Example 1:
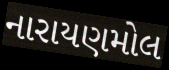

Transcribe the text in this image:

નારાયણમોલ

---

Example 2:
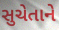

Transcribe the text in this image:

સુચેતાને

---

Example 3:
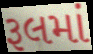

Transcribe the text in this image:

રૂલમાં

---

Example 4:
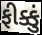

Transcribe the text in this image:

ફીક્કું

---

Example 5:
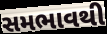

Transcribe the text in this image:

સમભાવથી